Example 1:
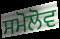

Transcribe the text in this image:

ਸਮੋਲੋਵ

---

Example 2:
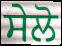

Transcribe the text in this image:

ਸੇਲੋ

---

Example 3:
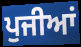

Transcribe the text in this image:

ਪੁਜੀਆਂ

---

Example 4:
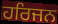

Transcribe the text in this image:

ਹਰਿਜਨ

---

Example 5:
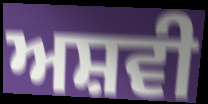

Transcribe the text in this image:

ਅਸ਼ਵੀ